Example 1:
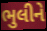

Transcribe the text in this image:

ભુલીને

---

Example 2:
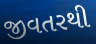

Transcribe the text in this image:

જીવતરથી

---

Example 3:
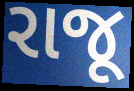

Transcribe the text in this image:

રાજૂ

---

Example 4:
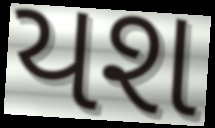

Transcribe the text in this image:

યશ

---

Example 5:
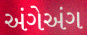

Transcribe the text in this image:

અંગેઅંગ